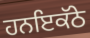
ਹਨਇਕੱਠੇ